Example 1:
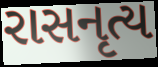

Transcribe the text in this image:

રાસનૃત્ય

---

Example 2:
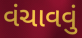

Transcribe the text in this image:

વંચાવવું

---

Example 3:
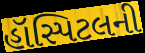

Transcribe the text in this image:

હૉસ્પિટલની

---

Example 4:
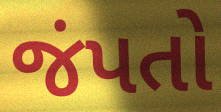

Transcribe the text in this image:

જંપતો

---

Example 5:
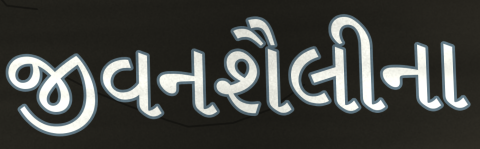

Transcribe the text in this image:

જીવનશૈલીના